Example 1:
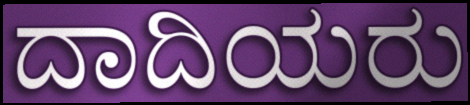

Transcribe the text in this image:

ದಾದಿಯರು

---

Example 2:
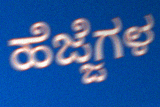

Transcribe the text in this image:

ಹೆಜ್ಜೆಗಳ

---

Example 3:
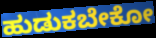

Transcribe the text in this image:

ಹುಡುಕಬೇಕೋ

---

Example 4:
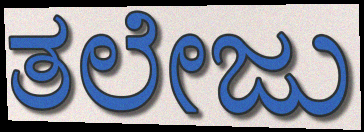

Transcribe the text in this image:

ತಲೇಜು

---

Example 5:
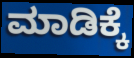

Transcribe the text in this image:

ಮಾಡಿಕ್ಕೆ